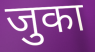
जुका